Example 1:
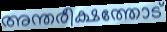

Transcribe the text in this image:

അന്തരീക്ഷത്തോട്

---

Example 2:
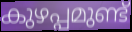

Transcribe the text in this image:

കുഴപ്പമുണ്ട്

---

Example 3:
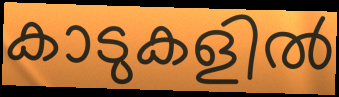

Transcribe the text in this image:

കാടുകളിൽ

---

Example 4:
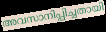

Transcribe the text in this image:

അവസാനിപ്പിച്ചതായി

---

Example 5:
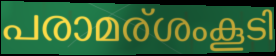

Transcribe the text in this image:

പരാമര്ശംകൂടി